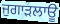
ਜੁਗਾੜਲਾਊ